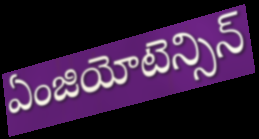
ఏంజియోటెన్సిన్